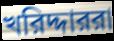
খরিদ্দাররা